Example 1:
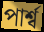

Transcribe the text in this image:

পাৰ্শ্ব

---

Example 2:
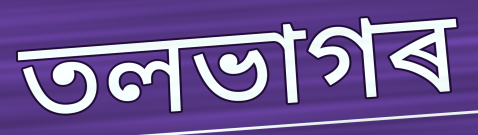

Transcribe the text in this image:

তলভাগৰ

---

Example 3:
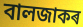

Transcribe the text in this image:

বালজাকৰ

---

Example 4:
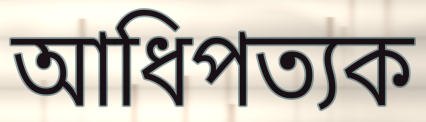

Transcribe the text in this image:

আধিপত্যক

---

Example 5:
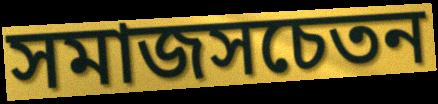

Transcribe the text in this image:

সমাজসচেতন